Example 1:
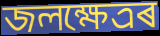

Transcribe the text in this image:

জলক্ষেত্ৰৰ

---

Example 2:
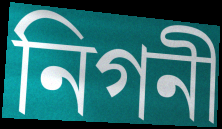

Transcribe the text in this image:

নিগনী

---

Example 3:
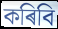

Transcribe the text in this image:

কৰিবি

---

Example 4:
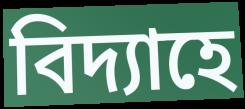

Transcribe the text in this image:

বিদ্যাহে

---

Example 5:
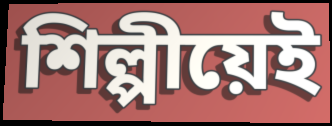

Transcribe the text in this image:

শিল্পীয়েই